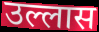
उल्‍लास